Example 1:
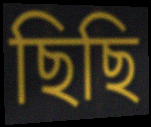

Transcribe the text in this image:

ছিছি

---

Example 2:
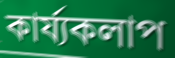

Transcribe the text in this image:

কাৰ্য্যকলাপ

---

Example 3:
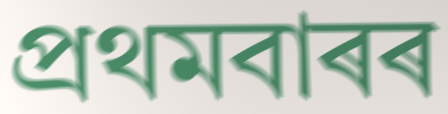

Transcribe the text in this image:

প্ৰথমবাৰৰ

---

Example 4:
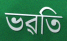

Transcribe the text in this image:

ভৱতি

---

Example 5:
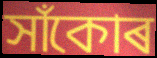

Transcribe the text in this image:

সাঁকোৰ